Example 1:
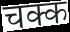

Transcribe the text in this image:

चक्‍क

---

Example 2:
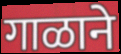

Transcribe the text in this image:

गाळाने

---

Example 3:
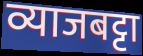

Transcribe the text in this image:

व्याजबट्टा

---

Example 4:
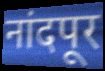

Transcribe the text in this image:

नांदपूर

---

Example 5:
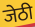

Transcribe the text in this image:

जेठी